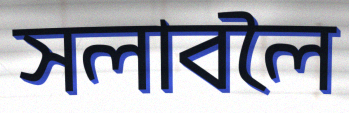
সলাবলৈ